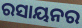
ରସାୟନର